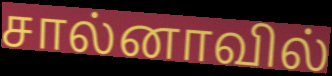
சால்னாவில்